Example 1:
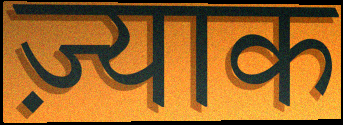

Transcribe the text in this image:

ज़्याक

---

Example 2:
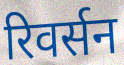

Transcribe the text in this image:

रिवर्सन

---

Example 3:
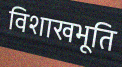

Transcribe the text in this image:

विशाखभूति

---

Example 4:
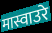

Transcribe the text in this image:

मास्वाउरे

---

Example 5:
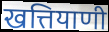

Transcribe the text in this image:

खत्तियाणी